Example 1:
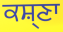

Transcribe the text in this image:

ਕਸ਼੍ਣਾ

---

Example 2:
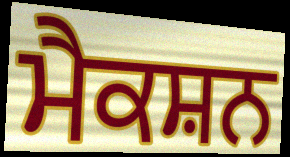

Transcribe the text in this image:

ਮੈਕਸ਼ਨ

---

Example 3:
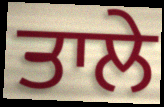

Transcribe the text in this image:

ਤਾਲੇ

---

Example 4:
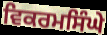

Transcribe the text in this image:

ਵਿਕਰਮਸਿੰਘੇ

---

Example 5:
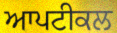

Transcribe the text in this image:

ਆਪਟੀਕਲ